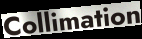
Collimation